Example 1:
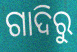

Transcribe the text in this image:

ଗାଦିରୁ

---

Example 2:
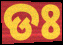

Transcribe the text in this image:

ଡଃ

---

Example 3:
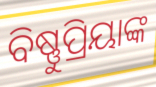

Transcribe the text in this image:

ବିଷ୍ଣୁପ୍ରିୟାଙ୍କ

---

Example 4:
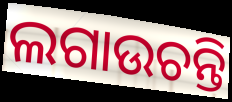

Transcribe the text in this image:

ଲଗାଉଚନ୍ତି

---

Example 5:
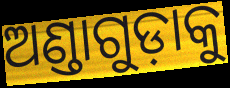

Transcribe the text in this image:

ଅଣ୍ଡାଗୁଡ଼ାକୁ